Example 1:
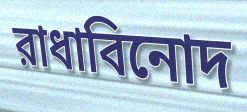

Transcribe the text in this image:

রাধাবিনোদ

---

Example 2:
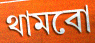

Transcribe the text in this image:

থামবো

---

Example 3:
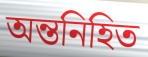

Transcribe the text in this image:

অন্তনিহিত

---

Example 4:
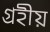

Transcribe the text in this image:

গ্রহীয়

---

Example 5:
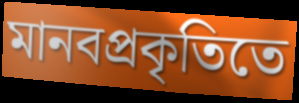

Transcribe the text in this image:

মানবপ্রকৃতিতে